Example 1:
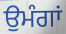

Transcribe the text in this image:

ਉਮੰਗਾਂ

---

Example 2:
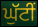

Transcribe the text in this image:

ਘੁੱਟੀਂ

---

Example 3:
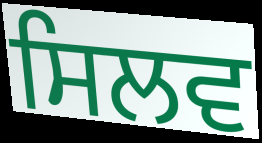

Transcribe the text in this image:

ਸਿਲਵ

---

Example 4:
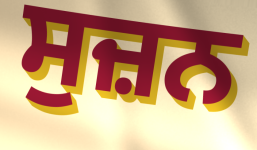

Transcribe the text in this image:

ਸੁਜ਼ਨ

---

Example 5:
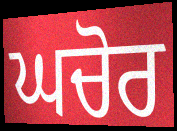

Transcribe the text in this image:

ਘਚੋਰ